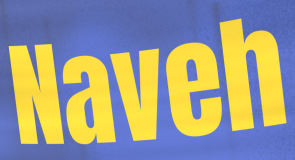
Naveh